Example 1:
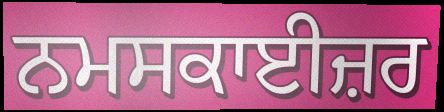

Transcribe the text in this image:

ਨਮਸਕਾਈਜ਼ਰ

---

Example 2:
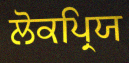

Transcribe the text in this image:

ਲੋਕਪ੍ਰਿਯ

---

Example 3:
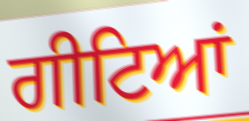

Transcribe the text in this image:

ਗੀਟਿਆਂ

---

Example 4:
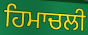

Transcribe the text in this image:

ਹਿਮਾਚਲੀ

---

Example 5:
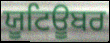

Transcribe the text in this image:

ਯੂਟਿਊਬਰ